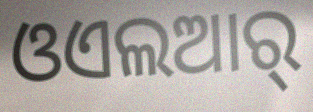
ଓଏଲଆର୍